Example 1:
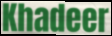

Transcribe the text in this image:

Khadeer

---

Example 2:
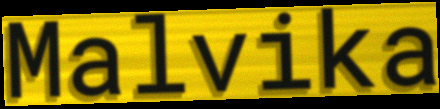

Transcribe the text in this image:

Malvika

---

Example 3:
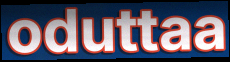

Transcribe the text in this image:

oduttaa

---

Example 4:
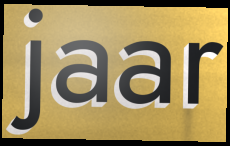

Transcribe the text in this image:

jaar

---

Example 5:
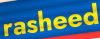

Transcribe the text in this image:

rasheed